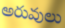
అరువులు